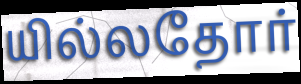
யில்லதோர்